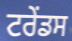
ਟਰੇਂਡਸ